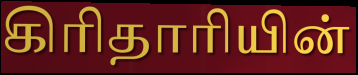
கிரிதாரியின்